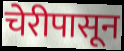
चेरीपासून